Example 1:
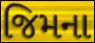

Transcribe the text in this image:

જિમના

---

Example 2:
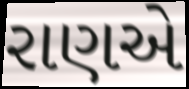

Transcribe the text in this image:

રાણએ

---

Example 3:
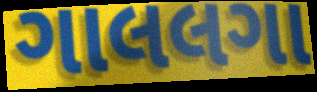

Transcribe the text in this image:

ગાલલગા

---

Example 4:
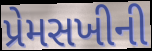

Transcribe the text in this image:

પ્રેમસખીની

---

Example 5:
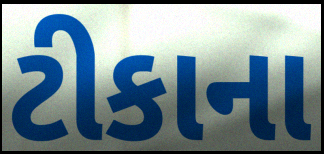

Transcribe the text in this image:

ટીકાના